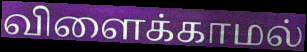
விளைக்காமல்